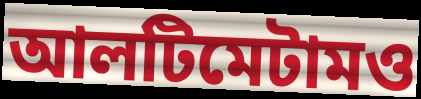
আলটিমেটামও